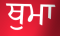
ਥੁਮਾ